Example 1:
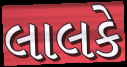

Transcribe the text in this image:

લાલકે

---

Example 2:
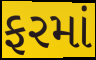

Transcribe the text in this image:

ફરમાં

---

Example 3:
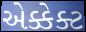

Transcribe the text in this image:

એક્કેક્ટ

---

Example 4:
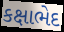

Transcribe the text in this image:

કક્ષાભેદ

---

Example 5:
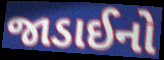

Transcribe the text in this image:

જાડાઈનો